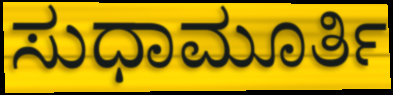
ಸುಧಾಮೂರ್ತಿ